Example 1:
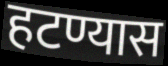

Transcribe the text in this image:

हटण्यास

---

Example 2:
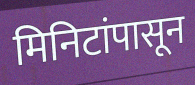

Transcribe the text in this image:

मिनिटांपासून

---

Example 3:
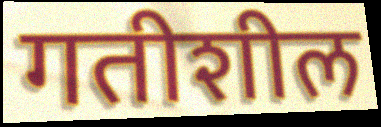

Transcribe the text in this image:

गतीशील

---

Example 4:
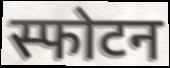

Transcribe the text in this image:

स्फोटन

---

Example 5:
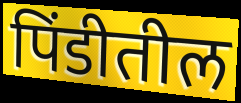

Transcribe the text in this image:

पिंडीतील